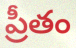
ప్రీతం